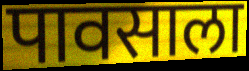
पावसाला